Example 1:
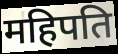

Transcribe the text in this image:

महिपति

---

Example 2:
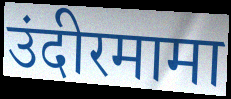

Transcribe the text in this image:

उंदीरमामा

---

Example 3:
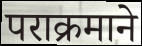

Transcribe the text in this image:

पराक्रमाने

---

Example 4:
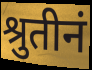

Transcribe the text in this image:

श्रुतीनं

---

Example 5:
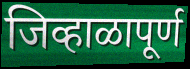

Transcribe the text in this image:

जिव्हाळापूर्ण